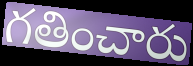
గతించారు